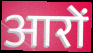
आरों